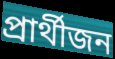
প্ৰাৰ্থীজন